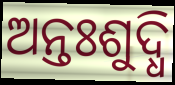
ଅନ୍ତଃଶୁଦ୍ଧି